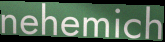
nehemich